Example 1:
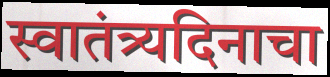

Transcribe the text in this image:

स्वातंत्र्यदिनाचा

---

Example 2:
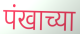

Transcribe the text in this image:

पंखाच्या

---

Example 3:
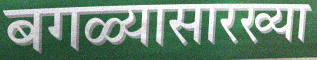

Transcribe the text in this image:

बगळ्यासारख्या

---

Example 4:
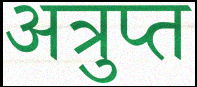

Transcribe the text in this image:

अत्रुप्त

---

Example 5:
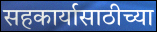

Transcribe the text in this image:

सहकार्यासाठीच्या